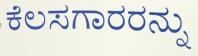
ಕೆಲಸಗಾರರನ್ನು